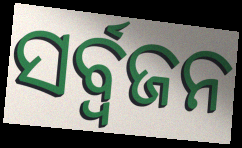
ସର୍ବ୍ବଜନ